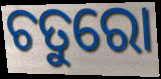
ଚତୁରୋ